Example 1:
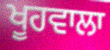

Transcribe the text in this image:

ਖੂਹਵਾਲਾ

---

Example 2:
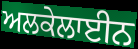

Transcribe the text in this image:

ਅਲਕੇਲਾਈਨ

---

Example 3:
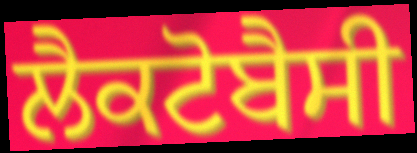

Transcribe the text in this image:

ਲੈਕਟੋਬੈਸੀ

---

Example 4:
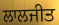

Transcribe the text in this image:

ਲਾਲਜੀਤ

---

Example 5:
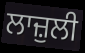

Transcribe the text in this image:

ਲਾਜ਼ੁਲੀ